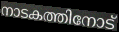
നാടകത്തിനോട്